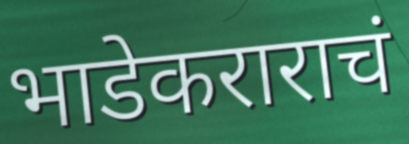
भाडेकराराचं